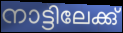
നാട്ടിലേക്കു്